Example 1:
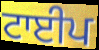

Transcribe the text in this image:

ਟਾਈਪ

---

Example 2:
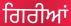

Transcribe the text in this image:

ਗਿਰੀਆਂ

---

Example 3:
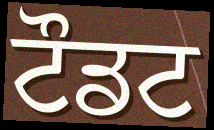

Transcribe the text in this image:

ਟੌਡਟ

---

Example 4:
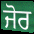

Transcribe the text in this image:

ਜੋਰ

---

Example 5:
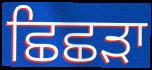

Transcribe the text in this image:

ਛਿਛੜਾ